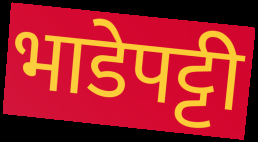
भाडेपट्टी